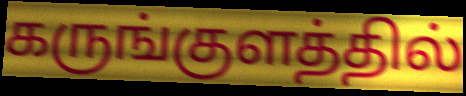
கருங்குளத்தில்